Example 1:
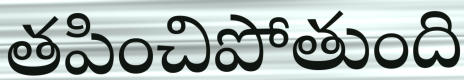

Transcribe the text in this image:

తపించిపోతుంది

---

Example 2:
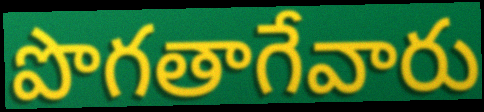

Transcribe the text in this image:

పొగతాగేవారు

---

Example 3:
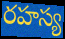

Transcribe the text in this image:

రహస్య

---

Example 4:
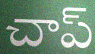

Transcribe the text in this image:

చాప్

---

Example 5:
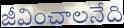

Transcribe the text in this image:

జీవించాలనేది